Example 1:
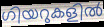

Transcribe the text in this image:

ഗിയറുകളിൽ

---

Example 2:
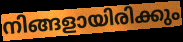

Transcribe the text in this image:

നിങ്ങളായിരിക്കും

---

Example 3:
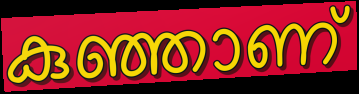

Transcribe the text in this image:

കുഞ്ഞാണ്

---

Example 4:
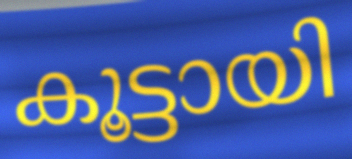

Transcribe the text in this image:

കൂട്ടായി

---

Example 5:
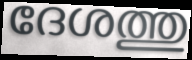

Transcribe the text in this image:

ദേശത്തു